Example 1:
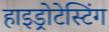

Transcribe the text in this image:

हाइड्रोटेस्टिंग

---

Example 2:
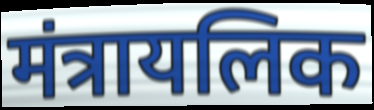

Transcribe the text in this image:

मंत्रायलिक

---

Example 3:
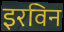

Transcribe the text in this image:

इरविन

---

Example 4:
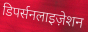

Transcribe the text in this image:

डिपर्सनलाइज़ेशन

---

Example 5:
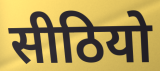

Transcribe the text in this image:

सीठियो